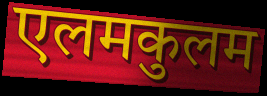
एलमकुलम